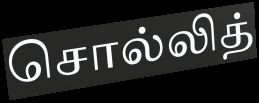
சொல்லித்